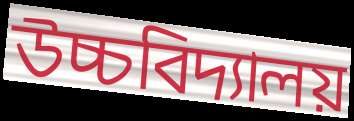
উচ্চবিদ্যালয়